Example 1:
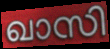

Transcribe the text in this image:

ഖാസി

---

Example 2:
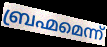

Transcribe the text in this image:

ബ്രഹ്മമെന്ന്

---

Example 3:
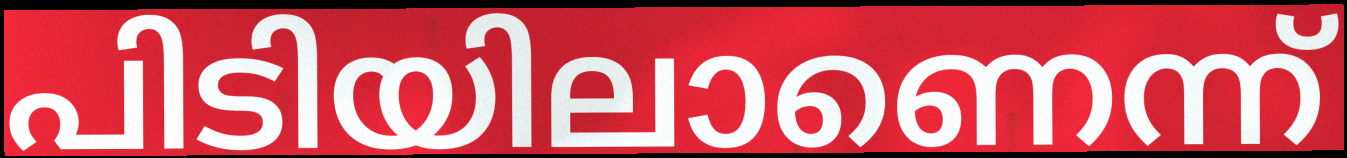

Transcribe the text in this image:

പിടിയിലാണെന്ന്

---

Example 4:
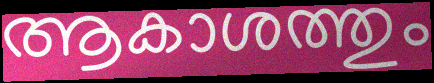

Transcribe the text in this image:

ആകാശത്തും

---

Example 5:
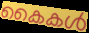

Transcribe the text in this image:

കൈകൾ